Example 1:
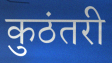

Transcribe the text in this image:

कुठंतरी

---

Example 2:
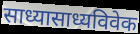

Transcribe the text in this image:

साध्यासाध्यविवेक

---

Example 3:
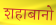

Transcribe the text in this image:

शहाबानो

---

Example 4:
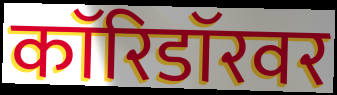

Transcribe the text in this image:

कॉरिडॉरवर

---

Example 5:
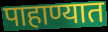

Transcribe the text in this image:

पाहाण्यात